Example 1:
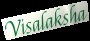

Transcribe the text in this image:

Visalaksha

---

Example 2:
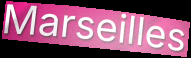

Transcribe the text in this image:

Marseilles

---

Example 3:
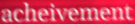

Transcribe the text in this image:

acheivement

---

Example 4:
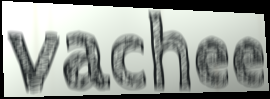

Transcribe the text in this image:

vachee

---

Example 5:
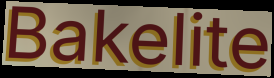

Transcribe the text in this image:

Bakelite